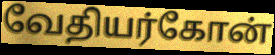
வேதியர்கோன்